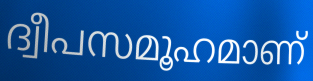
ദ്വീപസമൂഹമാണ്